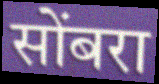
सोंबरा